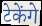
टेकेंगे